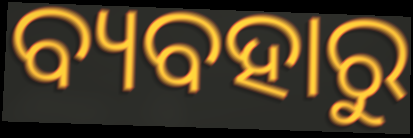
ବ୍ୟବହାରୁ